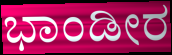
ಭಾಂಡೀರ